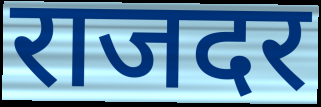
राजदर